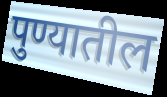
पुण्यातील